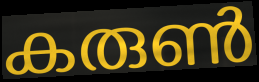
കരുൺ